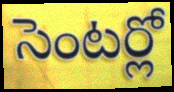
సెంటర్లో